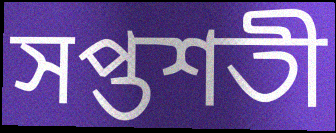
সপ্তশতী